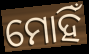
ମୋହିଁ